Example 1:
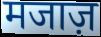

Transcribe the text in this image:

मजाज़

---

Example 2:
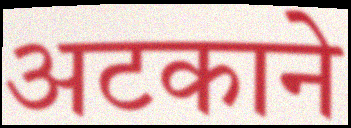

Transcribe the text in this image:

अटकाने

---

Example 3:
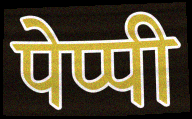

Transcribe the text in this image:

पेप्पी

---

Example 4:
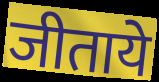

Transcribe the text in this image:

जीताये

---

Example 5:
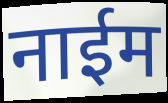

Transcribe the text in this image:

नाईम